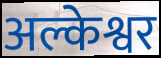
अल्केश्वर